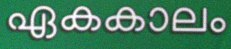
ഏകകാലം